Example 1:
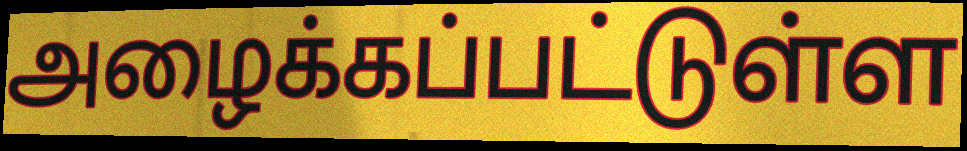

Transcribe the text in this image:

அழைக்கப்பட்டுள்ள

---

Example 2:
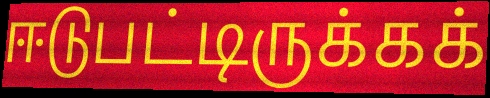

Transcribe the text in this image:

ஈடுபட்டிருக்கக்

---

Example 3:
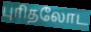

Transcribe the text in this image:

புரிதலோட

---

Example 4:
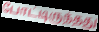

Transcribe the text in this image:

போட்டிருந்தது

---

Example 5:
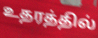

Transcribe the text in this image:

உதரத்தில்